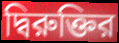
দ্বিরুক্তির